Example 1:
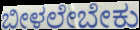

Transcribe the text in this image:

ಬೀಳಲೇಬೇಕು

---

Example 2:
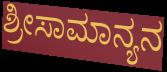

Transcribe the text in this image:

ಶ್ರೀಸಾಮಾನ್ಯನ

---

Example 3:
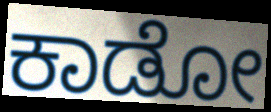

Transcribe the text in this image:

ಕಾಡೋ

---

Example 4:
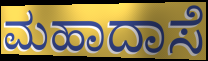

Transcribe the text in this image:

ಮಹಾದಾಸೆ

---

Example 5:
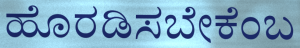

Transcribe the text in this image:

ಹೊರಡಿಸಬೇಕೆಂಬ